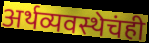
अर्थव्यवस्थेचंही